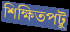
শিক্ষিতপটু